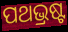
ପଥଭ୍ରଷ୍ଟ